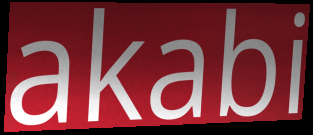
akabi